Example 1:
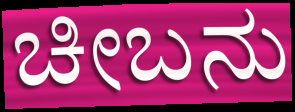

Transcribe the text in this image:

ಚೀಬನು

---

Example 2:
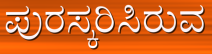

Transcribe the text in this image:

ಪುರಸ್ಕರಿಸಿರುವ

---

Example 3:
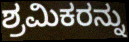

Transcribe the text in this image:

ಶ್ರಮಿಕರನ್ನು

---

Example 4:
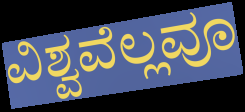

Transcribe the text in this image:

ವಿಶ್ವವೆಲ್ಲವೂ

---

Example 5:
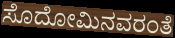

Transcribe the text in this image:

ಸೊದೋಮಿನವರಂತೆ